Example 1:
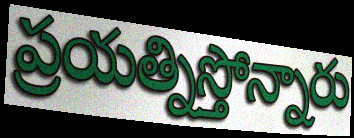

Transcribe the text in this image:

ప్రయత్నిస్తోన్నారు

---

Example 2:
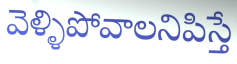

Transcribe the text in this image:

వెళ్ళిపోవాలనిపిస్తే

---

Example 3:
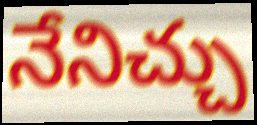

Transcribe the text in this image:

నేనిచ్చు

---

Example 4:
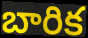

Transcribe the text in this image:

బారిక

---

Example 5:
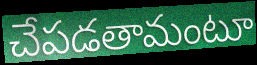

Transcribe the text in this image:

చేపడతామంటూ